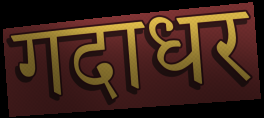
गदाधर